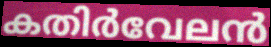
കതിർവേലൻ